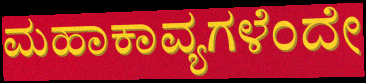
ಮಹಾಕಾವ್ಯಗಳೆಂದೇ